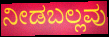
ನೀಡಬಲ್ಲವು